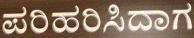
ಪರಿಹರಿಸಿದಾಗ